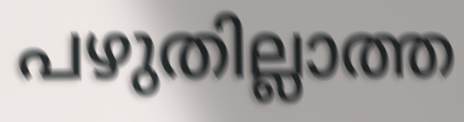
പഴുതില്ലാത്ത